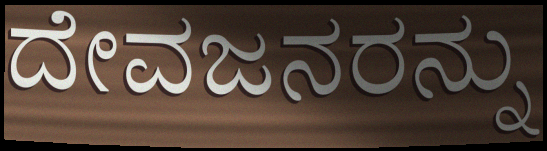
ದೇವಜನರನ್ನು